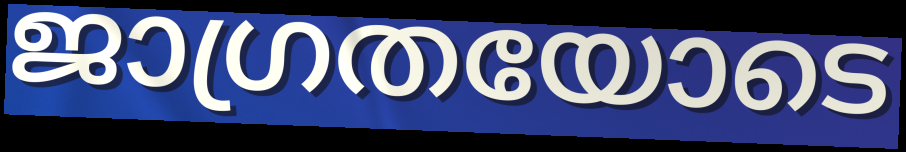
ജാഗ്രതയോടെ